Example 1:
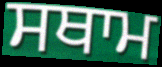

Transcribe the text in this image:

ਸਥਾਮ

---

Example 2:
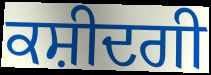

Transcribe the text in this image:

ਕਸ਼ੀਦਗੀ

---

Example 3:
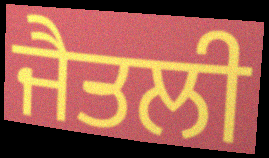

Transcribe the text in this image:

ਜੈਤਲੀ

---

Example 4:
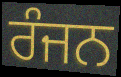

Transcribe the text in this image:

ਰੰਜਨ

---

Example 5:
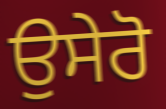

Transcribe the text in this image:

ਉਸੇਰੋ